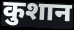
कुशान